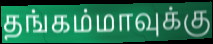
தங்கம்மாவுக்கு